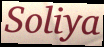
Soliya